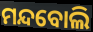
ମନ୍ଦବୋଲି